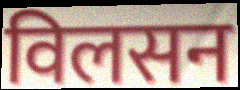
विलसन